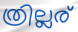
ത്രില്ലര്